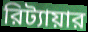
রিট্যায়ার